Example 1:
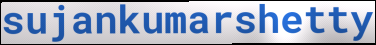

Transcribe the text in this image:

sujankumarshetty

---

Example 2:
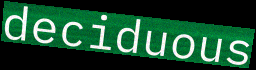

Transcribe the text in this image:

deciduous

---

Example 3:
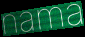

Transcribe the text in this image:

nama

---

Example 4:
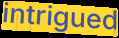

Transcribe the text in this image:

intrigued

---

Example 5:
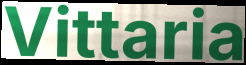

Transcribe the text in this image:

Vittaria